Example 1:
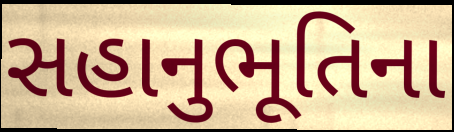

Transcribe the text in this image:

સહાનુભૂતિના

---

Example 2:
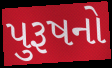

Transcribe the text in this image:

પુરૂષનો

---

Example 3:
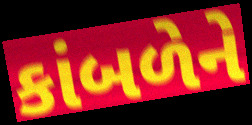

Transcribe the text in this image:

કાંબળેને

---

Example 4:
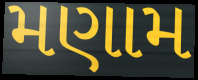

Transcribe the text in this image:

મણામ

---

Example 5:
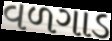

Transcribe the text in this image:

વળગાડ